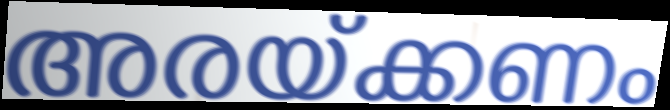
അരയ്‌ക്കണം